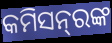
କମିସନ୍‍ରଙ୍କ